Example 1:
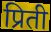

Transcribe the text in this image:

प्रिती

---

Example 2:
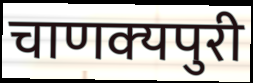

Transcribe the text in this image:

चाणक्यपुरी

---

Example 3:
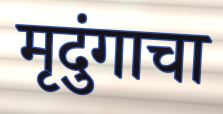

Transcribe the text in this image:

मृदुंगाचा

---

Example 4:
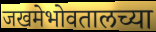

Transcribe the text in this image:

जखमेभोवतालच्या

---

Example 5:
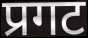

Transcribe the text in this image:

प्रगट